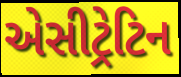
એસીટ્રેટિન